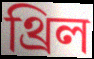
থ্রিল